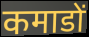
कमाडों